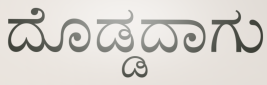
ದೊಡ್ಡದಾಗು